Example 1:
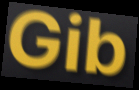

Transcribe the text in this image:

Gib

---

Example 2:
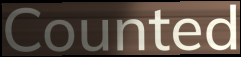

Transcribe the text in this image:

Counted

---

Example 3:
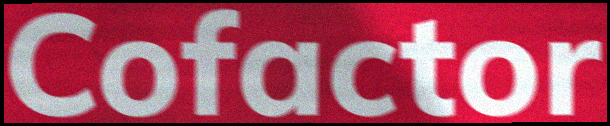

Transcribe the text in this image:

Cofactor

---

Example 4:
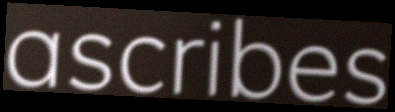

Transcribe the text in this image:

ascribes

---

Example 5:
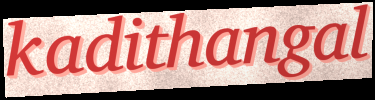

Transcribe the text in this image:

kadithangal